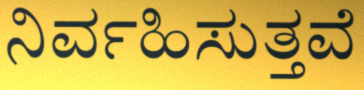
ನಿರ್ವಹಿಸುತ್ತವೆ